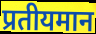
प्रतीयमान